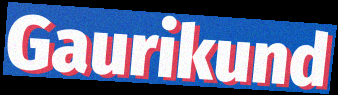
Gaurikund